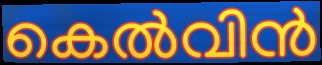
കെൽവിൻ